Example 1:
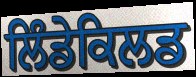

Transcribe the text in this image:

ਲਿੰਡੇਕਿਲਡ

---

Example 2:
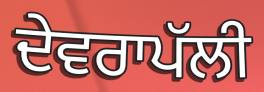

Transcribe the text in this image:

ਦੇਵਰਾਪੱਲੀ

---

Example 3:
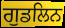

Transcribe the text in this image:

ਗੁਡਲਿਨ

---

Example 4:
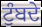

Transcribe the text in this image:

ਟੁੰਬਦੇ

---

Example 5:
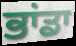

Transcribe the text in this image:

ਭਾਂਡਾ